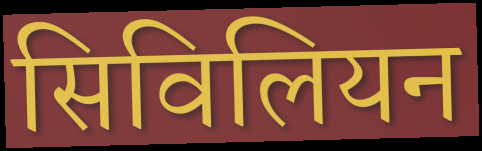
सिविलियन